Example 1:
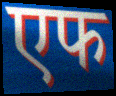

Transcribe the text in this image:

एफ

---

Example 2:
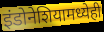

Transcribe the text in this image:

इंडोनेशियामध्येही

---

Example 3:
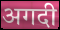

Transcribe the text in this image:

अगदी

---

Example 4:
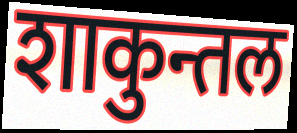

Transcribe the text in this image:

शाकुन्तल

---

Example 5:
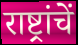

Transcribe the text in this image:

राष्ट्रांचें